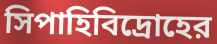
সিপাহিবিদ্রোহের